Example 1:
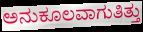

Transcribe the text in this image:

ಅನುಕೂಲವಾಗುತಿತ್ತು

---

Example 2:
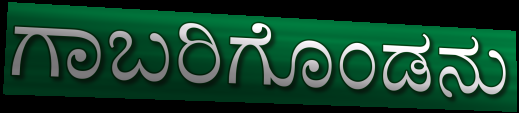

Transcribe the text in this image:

ಗಾಬರಿಗೊಂಡನು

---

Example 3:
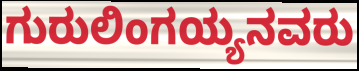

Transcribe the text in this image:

ಗುರುಲಿಂಗಯ್ಯನವರು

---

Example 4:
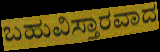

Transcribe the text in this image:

ಬಹುವಿಸ್ತಾರವಾದ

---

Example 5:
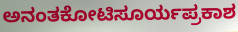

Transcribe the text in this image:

ಅನಂತಕೋಟಿಸೂರ್ಯಪ್ರಕಾಶ